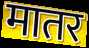
मातर